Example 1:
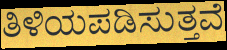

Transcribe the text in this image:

ತಿಳಿಯಪಡಿಸುತ್ತವೆ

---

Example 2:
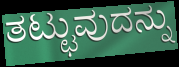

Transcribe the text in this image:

ತಟ್ಟುವುದನ್ನು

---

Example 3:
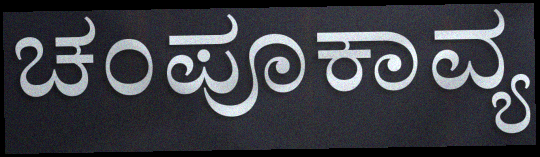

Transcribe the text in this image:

ಚಂಪೂಕಾವ್ಯ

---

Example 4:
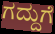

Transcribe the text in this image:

ಗದ್ದುಗೆ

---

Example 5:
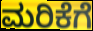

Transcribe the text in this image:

ಮರಿಕೆಗೆ